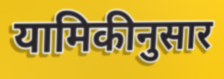
यामिकीनुसार